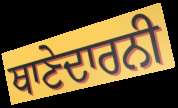
ਥਾਣੇਦਾਰਨੀ